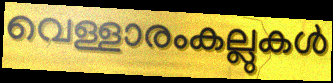
വെള്ളാരംകല്ലുകൾ